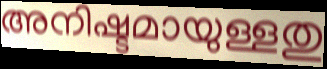
അനിഷ്ടമായുള്ളതു